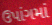
ઉપાંગમાં